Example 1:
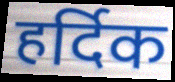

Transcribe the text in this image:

हर्दिक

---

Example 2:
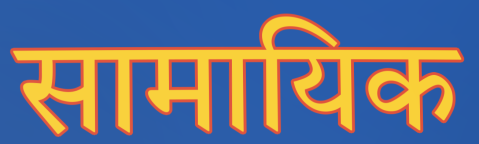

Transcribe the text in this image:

सामायिक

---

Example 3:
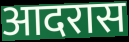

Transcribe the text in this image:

आदरास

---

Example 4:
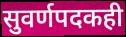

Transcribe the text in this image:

सुवर्णपदकही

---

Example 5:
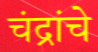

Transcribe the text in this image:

चंद्रांचे